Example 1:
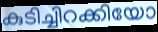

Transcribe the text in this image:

കുടിച്ചിറക്കിയോ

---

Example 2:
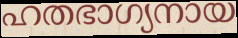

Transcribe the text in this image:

ഹതഭാഗ്യനായ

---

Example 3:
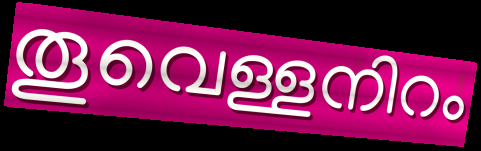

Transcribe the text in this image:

തൂവെള്ളനിറം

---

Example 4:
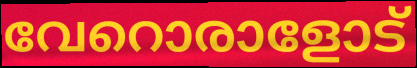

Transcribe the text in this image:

വേറൊരാളോട്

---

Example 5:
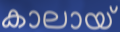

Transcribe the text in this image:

കാലായ്